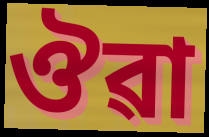
ঔৱা